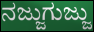
ನಜ್ಜುಗುಜ್ಜು